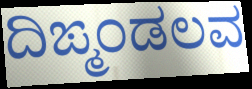
ದಿಙ್ಮಂಡಲವ